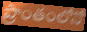
ప్రాంతంలోనో